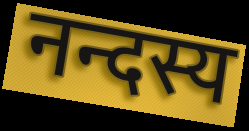
नन्दस्य